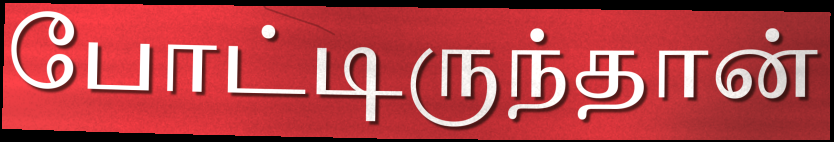
போட்டிருந்தான்